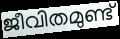
ജീവിതമുണ്ട്